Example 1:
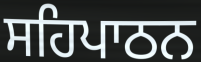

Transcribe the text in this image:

ਸਹਿਪਾਠਨ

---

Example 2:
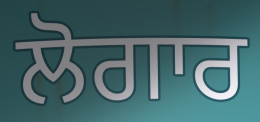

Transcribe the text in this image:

ਲੋਗਾਰ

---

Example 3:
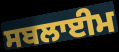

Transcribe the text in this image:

ਸਬਲਾਈਮ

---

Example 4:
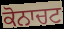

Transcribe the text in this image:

ਕੋਨਾਚਟ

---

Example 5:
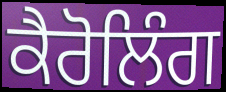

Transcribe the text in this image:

ਕੈਰੋਲਿੰਗ